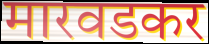
मारवडकर